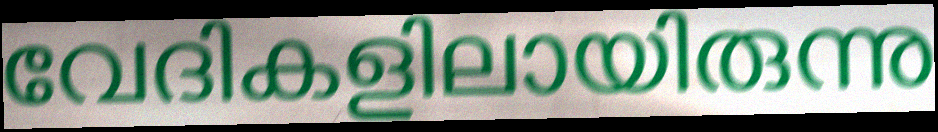
വേദികളിലായിരുന്നു